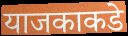
याजकाकडे